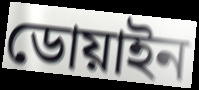
ডোয়াইন